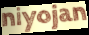
niyojan